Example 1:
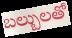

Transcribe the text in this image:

బల్బులతో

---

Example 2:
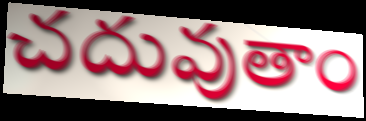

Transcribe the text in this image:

చదువుతాం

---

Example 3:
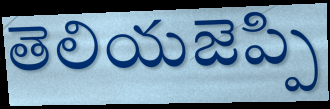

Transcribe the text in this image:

తెలియజెప్పి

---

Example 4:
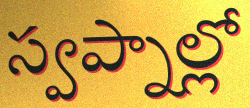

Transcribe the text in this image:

స్వప్నాల్లో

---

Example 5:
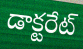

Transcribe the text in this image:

డాక్టరేట్